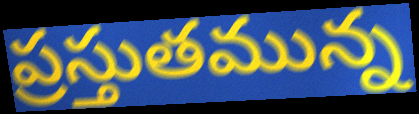
ప్రస్తుతమున్న